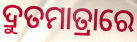
ଦ୍ରୁତମାତ୍ରାରେ